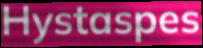
Hystaspes